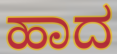
ಹಾದ